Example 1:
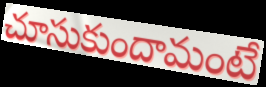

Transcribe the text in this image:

చూసుకుందామంటే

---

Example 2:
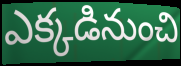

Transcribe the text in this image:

ఎక్కడినుంచి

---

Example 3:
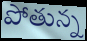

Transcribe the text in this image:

పోతున్న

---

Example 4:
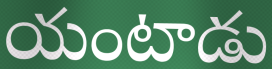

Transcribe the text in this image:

యంటాడు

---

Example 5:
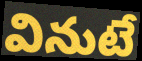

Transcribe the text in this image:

వినుటే